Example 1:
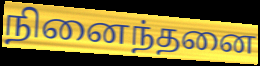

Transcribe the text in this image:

நினைந்தனை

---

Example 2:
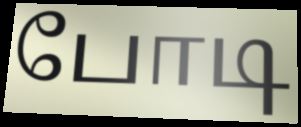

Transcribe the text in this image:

போடி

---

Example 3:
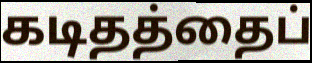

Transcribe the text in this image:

கடிதத்தைப்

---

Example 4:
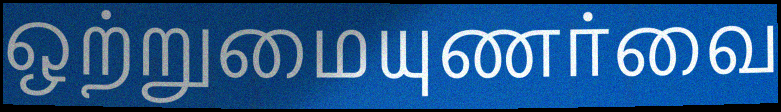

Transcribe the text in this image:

ஒற்றுமையுணர்வை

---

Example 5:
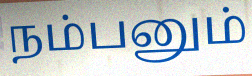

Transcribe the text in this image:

நம்பனும்